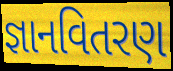
જ્ઞાનવિતરણ